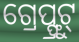
ଗ୍ରେପ୍ଫ୍ରୁଟ୍